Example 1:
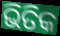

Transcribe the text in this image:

ଭିତିକ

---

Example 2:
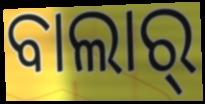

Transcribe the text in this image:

ବାଲାର୍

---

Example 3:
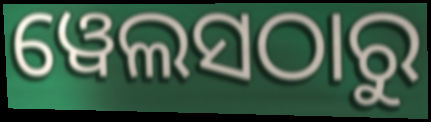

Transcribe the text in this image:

ୱେଲସଠାରୁ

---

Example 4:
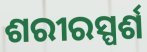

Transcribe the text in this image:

ଶରୀରସ୍ପର୍ଶ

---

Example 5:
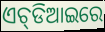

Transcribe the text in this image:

ଏଚ୍‌ଡିଆଇରେ